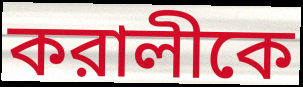
করালীকে